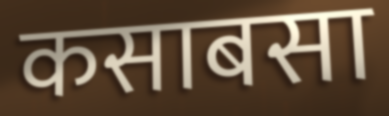
कसाबसा